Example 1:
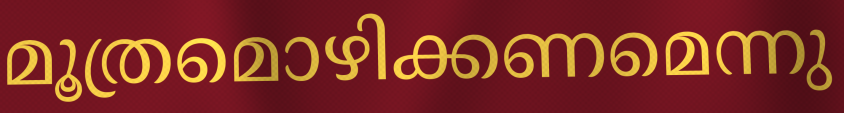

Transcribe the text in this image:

മൂത്രമൊഴിക്കണമെന്നു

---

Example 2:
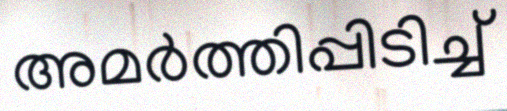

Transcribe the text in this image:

അമർത്തിപ്പിടിച്ച്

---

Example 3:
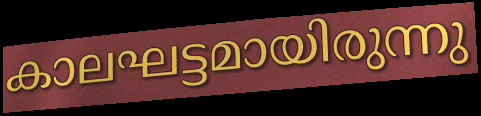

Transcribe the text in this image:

കാലഘട്ടമായിരുന്നു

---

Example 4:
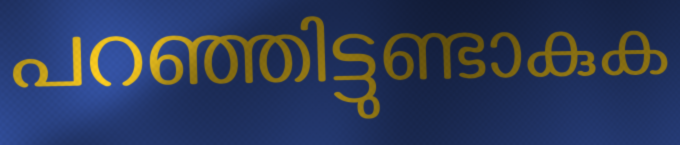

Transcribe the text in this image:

പറഞ്ഞിട്ടുണ്ടാകുക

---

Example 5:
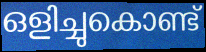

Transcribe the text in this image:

ഒളിച്ചുകൊണ്ട്